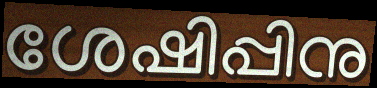
ശേഷിപ്പിനു